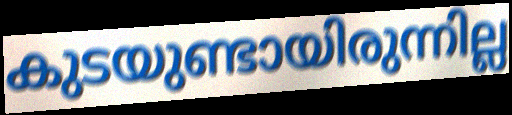
കുടയുണ്ടായിരുന്നില്ല